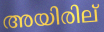
അയിരില്